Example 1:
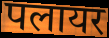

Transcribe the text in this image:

पलायर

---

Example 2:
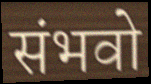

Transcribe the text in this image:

संभवो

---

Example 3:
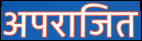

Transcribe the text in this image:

अपराजित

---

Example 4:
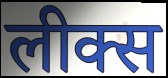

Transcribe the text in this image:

लीक्स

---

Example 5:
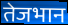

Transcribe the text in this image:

तेजभान